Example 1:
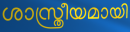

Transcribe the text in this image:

ശാസ്ത്രീയമായി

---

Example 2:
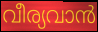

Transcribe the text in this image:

വീര്യവാൻ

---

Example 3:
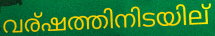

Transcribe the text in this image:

വര്ഷത്തിനിടയില്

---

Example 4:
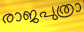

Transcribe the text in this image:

രാജപുത്രാ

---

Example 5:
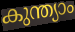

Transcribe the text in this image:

കുന്ത്യാം